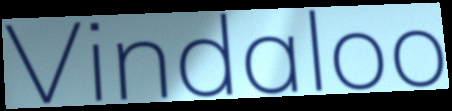
Vindaloo